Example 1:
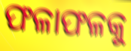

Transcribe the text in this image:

ଫଳାଫଳକୁ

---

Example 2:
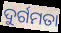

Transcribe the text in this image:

ଦୁର୍ଗମତା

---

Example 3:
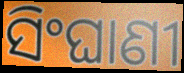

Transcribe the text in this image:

ସିଂଘାଣୀ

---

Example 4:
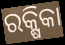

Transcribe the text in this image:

ରକ୍ଷିକା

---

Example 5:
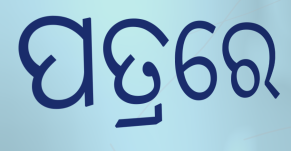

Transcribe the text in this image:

ପତ୍ରରେ